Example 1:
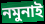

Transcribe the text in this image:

নমুনাই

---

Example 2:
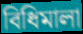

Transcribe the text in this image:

বিধিমালা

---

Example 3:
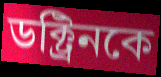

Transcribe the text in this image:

ডক্ট্রিনকে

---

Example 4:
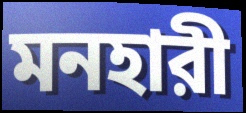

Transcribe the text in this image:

মনহারী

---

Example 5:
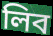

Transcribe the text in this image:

লিব